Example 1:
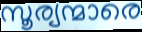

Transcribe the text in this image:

സൂര്യന്മാരെ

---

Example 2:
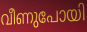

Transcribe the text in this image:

വീണുപോയി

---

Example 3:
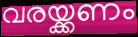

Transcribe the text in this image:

വരയ്ക്കണം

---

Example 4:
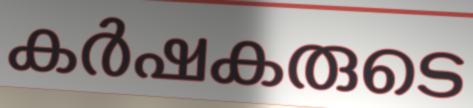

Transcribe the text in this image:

കർഷകരുടെ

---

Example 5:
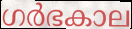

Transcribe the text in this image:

ഗർഭകാല